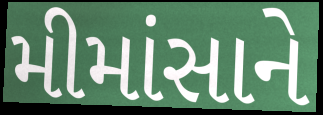
મીમાંસાને